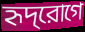
হৃদ্‌রোগে